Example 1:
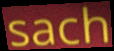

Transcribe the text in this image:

sach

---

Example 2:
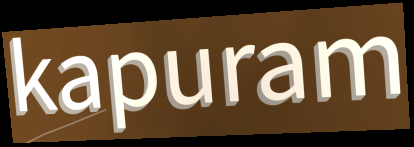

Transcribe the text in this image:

kapuram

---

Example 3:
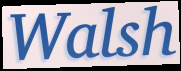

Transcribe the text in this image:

Walsh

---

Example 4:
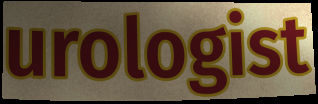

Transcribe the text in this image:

urologist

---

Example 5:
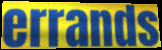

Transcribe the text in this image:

errands